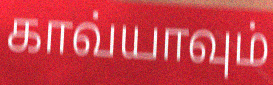
காவ்யாவும்